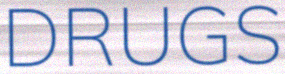
DRUGS